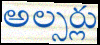
అల్సర్లు